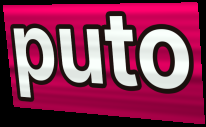
puto